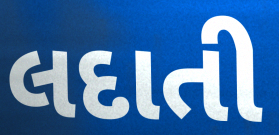
લદાતી